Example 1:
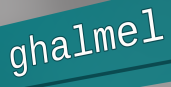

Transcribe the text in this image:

ghalmel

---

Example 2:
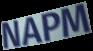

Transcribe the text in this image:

NAPM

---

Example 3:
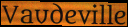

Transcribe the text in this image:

Vaudeville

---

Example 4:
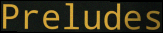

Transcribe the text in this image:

Preludes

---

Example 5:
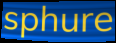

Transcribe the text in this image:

sphure